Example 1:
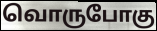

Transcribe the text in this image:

வொருபோகு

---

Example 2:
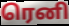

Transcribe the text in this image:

ரெனி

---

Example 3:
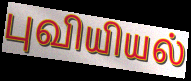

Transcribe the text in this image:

புவியியல்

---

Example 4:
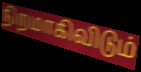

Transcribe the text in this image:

நிறமாகிவிடும்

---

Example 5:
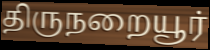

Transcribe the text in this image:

திருநறையூர்